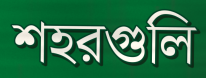
শহরগুলি